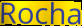
Rocha